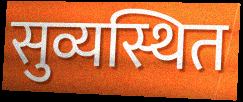
सुव्यस्थित